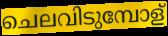
ചെലവിടുമ്പോള്